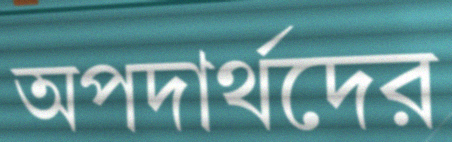
অপদার্থদের